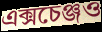
এক্সচেঞ্জও